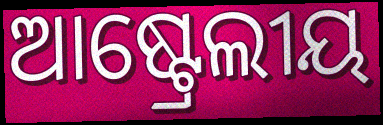
ଆଷ୍ଟ୍ରେଲୀୟ